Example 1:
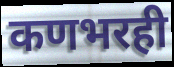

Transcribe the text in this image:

कणभरही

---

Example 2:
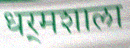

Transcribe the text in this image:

धर्मशाला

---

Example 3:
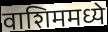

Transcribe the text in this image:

वाशिममध्ये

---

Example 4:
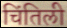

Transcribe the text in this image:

चिंतिली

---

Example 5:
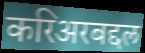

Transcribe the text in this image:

करिअरबद्दल